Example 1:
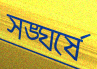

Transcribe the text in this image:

সঙ্ঘর্ষে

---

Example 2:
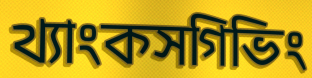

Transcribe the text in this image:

থ্যাংকসগিভিং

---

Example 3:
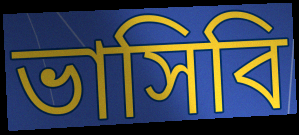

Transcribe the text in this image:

ভাসিবি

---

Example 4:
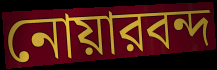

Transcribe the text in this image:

নোয়ারবন্দ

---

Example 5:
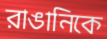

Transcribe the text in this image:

রাঙানিকে